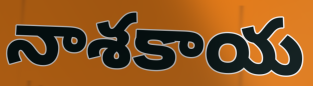
నాశకాయ